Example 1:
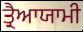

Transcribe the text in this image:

ਤ੍ਰੈਆਯਾਮੀ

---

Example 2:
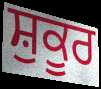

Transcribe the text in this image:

ਸ਼ੁਕੂਰ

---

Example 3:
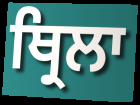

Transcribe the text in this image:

ਥ੍ਰਿਲਾ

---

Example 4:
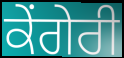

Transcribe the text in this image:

ਕੇਂਗੇਰੀ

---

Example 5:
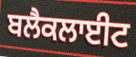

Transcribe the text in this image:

ਬਲੈਕਲਾਈਟ